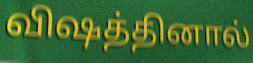
விஷத்தினால்